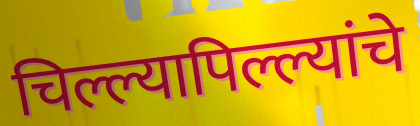
चिल्ल्यापिल्ल्यांचे